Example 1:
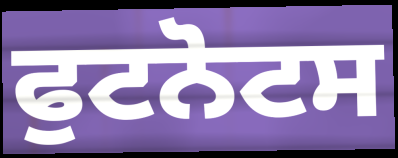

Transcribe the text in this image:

ਫੁਟਨੋਟਸ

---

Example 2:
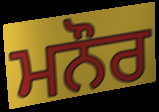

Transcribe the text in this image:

ਮਨੌਰ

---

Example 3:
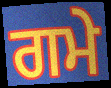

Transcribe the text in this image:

ਗਮੇ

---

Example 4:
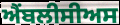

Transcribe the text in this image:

ਐਂਬਲੀਸੀਅਸ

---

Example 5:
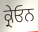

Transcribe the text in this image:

ਕ੍ਰੇਓਨ